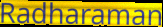
Radharaman